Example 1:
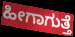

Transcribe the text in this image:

ಹೀಗಾಗುತ್ತೆ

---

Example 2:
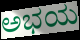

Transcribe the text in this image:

ಅಭಯ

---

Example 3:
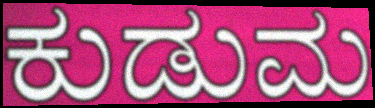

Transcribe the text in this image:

ಕುಡುಮ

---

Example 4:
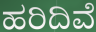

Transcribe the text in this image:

ಹರಿದಿವೆ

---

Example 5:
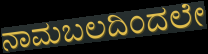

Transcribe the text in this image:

ನಾಮಬಲದಿಂದಲೇ